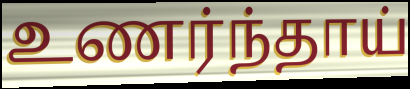
உணர்ந்தாய்